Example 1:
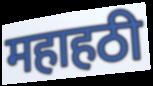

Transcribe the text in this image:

महाहठी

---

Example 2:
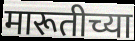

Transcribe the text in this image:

मारूतीच्या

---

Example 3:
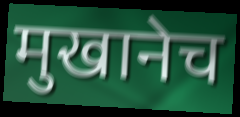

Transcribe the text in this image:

मुखानेच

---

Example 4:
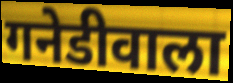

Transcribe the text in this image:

गनेडीवाला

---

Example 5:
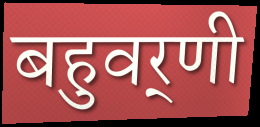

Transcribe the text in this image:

बहुवर्णी